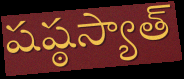
షష్ఠస్యాత్